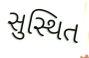
સુસ્થિત